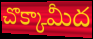
చొక్కామీద